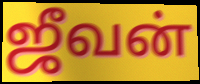
ஜீவன்